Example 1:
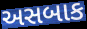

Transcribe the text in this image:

અસબાક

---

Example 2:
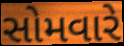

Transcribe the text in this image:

સોમવારે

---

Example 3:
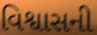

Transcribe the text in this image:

વિશ્વાસની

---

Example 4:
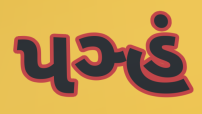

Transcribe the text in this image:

પઞ્હં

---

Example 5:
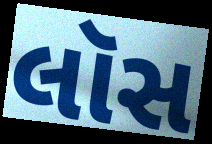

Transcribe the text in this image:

લૉસ